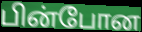
பின்போன